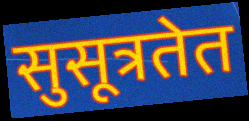
सुसूत्रतेत